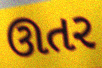
ઊતર